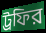
ট্রফির